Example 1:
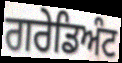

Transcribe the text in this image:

ਗਰੇਡਿਅੰਟ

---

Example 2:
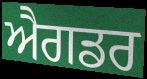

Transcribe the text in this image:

ਐਗਡਰ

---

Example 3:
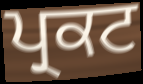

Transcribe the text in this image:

ਪ੍ਰਕਟ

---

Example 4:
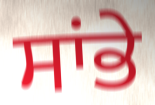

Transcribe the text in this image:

ਸਾਂਭੇ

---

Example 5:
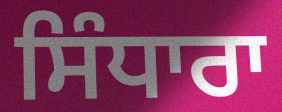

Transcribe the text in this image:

ਸਿੰਧਾਰਾ